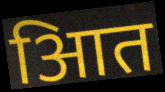
आित